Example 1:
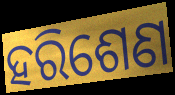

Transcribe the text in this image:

ହରିଶେଣ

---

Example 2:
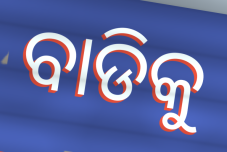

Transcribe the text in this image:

ବାଡିକୁ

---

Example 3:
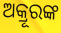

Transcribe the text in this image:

ଅକ୍ରୂରଙ୍କ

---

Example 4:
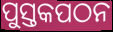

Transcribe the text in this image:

ପୁସ୍ତକପଠନ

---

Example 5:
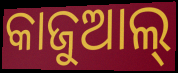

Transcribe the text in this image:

କାଜୁଆଲ୍